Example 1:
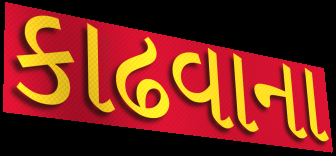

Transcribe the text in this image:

કાઢવાના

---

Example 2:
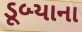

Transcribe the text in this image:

ડૂબ્યાના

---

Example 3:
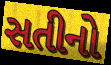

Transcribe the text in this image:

સતીનો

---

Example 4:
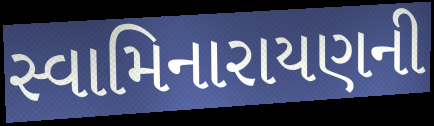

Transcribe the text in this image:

સ્વામિનારાયણની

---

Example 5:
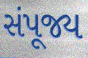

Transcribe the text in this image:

સંપૂજ્ય